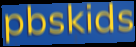
pbskids